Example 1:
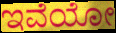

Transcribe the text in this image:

ಇವೆಯೋ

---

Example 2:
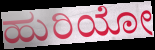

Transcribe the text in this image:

ಹುರಿಯೋ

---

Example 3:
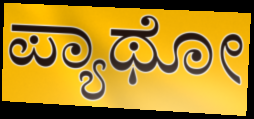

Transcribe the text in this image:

ಪ್ಯಾಥೋ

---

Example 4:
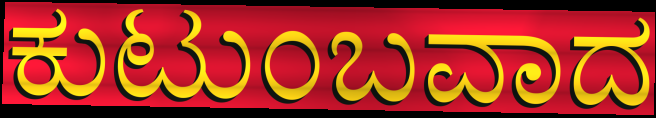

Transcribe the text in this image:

ಕುಟುಂಬವಾದ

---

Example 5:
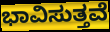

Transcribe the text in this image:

ಭಾವಿಸುತ್ತವೆ